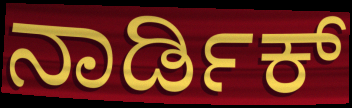
ನಾರ್ಡಿಕ್